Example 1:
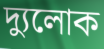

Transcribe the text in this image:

দ্যুলোক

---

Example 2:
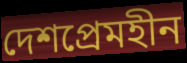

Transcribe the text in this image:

দেশপ্ৰেমহীন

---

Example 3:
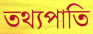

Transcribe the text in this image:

তথ্যপাতি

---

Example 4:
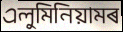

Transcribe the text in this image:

এলুমিনিয়ামৰ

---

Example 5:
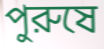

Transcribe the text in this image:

পুৰুষে